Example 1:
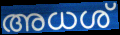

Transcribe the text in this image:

അധശ്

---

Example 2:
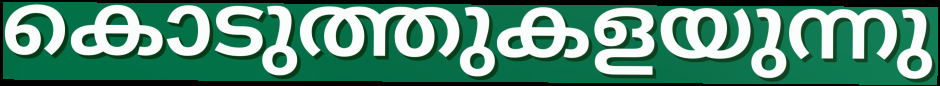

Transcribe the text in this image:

കൊടുത്തുകളയുന്നു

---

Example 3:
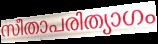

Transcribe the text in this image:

സീതാപരിത്യാഗം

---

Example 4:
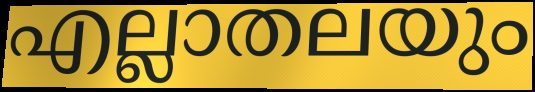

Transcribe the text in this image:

എല്ലാതലയും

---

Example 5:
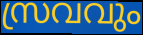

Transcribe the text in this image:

സ്രവവും